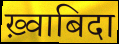
ख़्वाबिदा